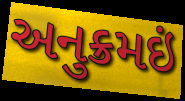
અનુક્રમઇં